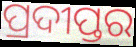
ପ୍ରଦୀପ୍ତର